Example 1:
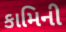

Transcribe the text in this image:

કામિની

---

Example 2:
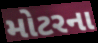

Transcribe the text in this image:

મોટરના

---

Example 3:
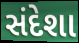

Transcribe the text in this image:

સંદેશા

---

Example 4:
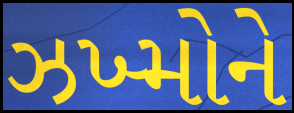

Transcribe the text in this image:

ઝખ્મોને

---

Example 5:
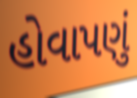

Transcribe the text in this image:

હોવાપણું